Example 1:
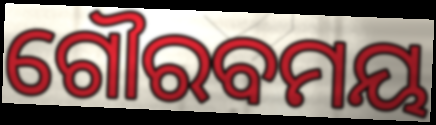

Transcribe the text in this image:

ଗୌରବମୟ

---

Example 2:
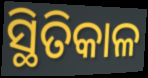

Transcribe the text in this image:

ସ୍ଥିତିକାଳ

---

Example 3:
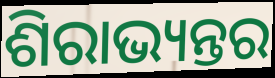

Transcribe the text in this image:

ଶିରାଭ୍ୟନ୍ତର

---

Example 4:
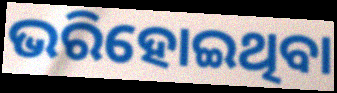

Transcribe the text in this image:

ଭରିହୋଇଥିବା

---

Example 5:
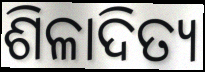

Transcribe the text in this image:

ଶିଳାଦିତ୍ୟ